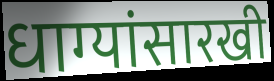
धाग्यांसारखी